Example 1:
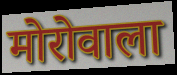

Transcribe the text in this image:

मोरोवाला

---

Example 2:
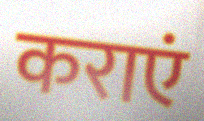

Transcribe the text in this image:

कराएं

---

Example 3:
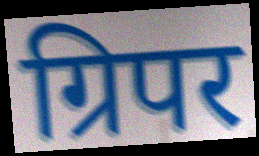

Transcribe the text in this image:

ग्रिपर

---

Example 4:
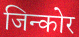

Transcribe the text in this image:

जिन्कोर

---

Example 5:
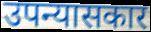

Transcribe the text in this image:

उपन्यासकार